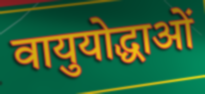
वायुयोद्धाओं